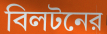
বিলটনের